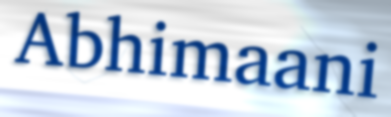
Abhimaani